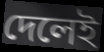
দেলেই